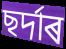
ছৰ্দাৰ